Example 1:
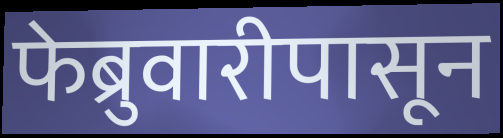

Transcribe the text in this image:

फेब्रुवारीपासून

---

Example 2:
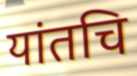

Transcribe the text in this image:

यांतचि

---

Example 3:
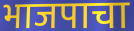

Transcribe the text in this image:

भाजपाचा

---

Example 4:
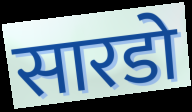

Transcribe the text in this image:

सारडो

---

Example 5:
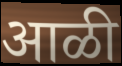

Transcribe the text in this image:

आळी